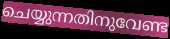
ചെയ്യുന്നതിനുവേണ്ട